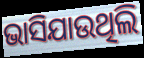
ଭାସିଯାଉଥିଲି